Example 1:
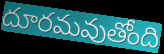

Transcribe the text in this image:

దూరమవుతోంది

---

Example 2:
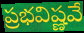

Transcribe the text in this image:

ప్రభవిష్ణవే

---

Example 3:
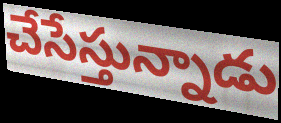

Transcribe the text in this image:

చేసేస్తున్నాడు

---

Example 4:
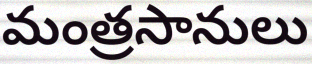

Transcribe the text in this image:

మంత్రసానులు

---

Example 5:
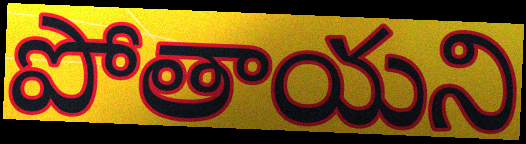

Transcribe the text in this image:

పోతాయని